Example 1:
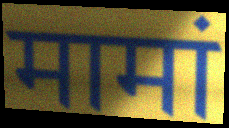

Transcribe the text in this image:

मामां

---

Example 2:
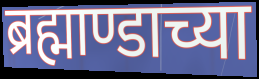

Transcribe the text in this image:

ब्रह्माण्डाच्या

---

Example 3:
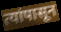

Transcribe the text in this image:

त्यांपासून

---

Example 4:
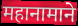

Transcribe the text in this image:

महानामाने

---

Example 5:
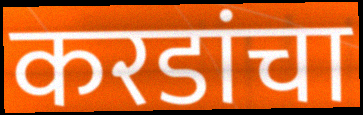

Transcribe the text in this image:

करडांचा